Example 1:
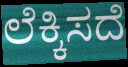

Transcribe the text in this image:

ಲೆಕ್ಕಿಸದೆ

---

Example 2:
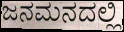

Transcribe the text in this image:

ಜನಮನದಲ್ಲಿ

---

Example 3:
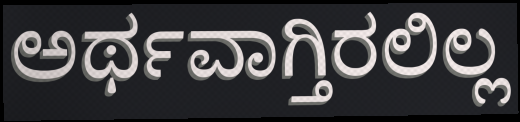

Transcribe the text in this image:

ಅರ್ಥವಾಗ್ತಿರಲಿಲ್ಲ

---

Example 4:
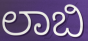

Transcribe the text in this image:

ಲಾಬಿ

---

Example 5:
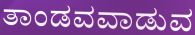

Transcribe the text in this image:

ತಾಂಡವವಾಡುವ